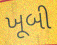
ખૂબી